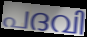
പദവി